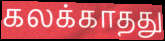
கலக்காதது